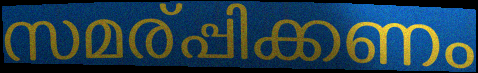
സമര്പ്പിക്കണം